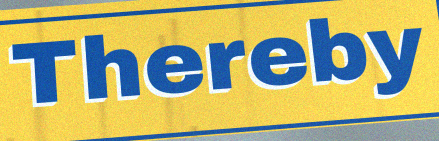
Thereby